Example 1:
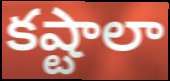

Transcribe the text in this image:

కష్టాలా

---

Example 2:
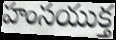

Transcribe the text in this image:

హంసయుక్త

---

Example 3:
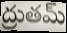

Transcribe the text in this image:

ద్రుతమ్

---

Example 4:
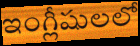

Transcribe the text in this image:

ఇంగ్లీషులలో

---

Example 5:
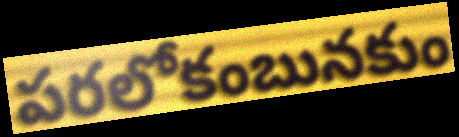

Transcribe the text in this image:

పరలోకంబునకుం